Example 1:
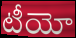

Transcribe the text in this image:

టీయో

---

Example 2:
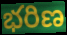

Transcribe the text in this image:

భరిణ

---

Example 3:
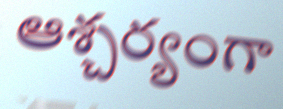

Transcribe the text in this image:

ఆశ్చర్యంగా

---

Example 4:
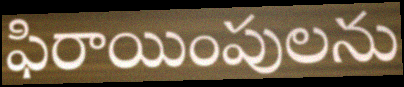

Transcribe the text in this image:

ఫిరాయింపులను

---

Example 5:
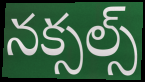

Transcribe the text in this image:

నక్సల్స్